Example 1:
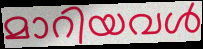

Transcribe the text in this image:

മാറിയവൾ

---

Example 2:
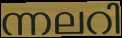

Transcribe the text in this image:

ന്നലറി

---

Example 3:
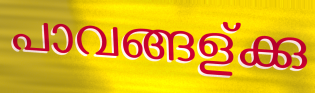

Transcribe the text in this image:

പാവങ്ങള്ക്കു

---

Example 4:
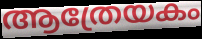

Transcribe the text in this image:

ആത്രേയകം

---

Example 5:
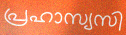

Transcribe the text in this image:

പ്രഹാസ്യസി